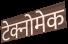
टेक्नोमेक